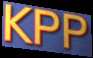
KPP